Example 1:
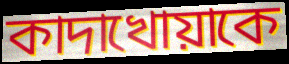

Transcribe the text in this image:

কাদাখোয়াকে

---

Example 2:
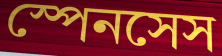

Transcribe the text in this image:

স্পেনসেস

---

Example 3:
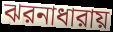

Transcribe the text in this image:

ঝরনাধারায়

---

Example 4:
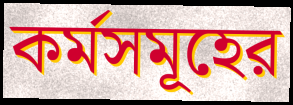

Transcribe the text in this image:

কর্মসমূহের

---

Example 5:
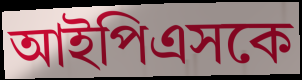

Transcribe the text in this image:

আইপিএসকে